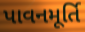
પાવનમૂર્તિ